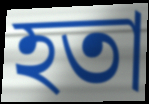
হতা